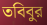
তবিবুর